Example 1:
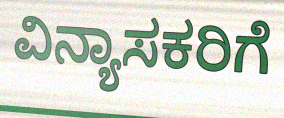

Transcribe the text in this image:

ವಿನ್ಯಾಸಕರಿಗೆ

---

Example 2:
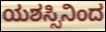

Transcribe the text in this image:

ಯಶಸ್ಸಿನಿಂದ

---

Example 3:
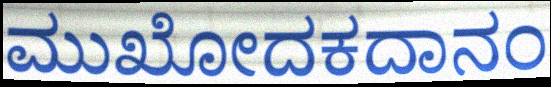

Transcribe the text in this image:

ಮುಖೋದಕದಾನಂ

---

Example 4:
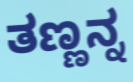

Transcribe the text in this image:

ತಣ್ಣನ್ನ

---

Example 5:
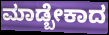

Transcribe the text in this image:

ಮಾಡ್ಬೇಕಾದ